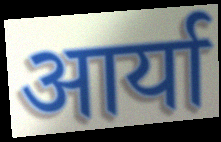
आर्या